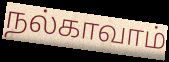
நல்காவாம்